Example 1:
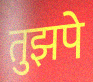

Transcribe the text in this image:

तुझपे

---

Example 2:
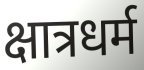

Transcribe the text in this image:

क्षात्रधर्म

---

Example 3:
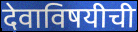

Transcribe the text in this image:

देवाविषयीची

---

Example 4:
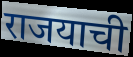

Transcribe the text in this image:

राजयाची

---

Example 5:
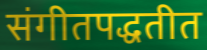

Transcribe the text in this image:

संगीतपद्धतीत